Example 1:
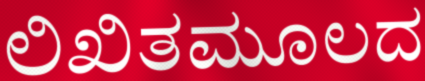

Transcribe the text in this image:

ಲಿಖಿತಮೂಲದ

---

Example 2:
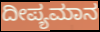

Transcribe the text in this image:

ದೀಪ್ಯಮಾನ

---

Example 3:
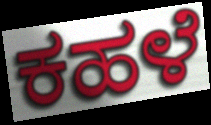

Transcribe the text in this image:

ಕಹಳೆ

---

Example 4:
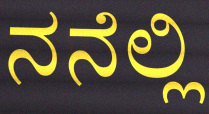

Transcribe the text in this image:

ನನೆಲ್ಲಿ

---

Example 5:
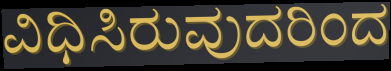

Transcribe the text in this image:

ವಿಧಿಸಿರುವುದರಿಂದ